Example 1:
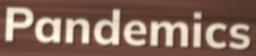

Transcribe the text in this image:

Pandemics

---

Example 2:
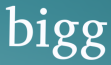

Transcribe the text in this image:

bigg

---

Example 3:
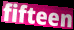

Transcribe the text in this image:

fifteen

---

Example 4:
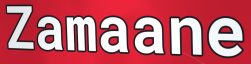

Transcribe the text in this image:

Zamaane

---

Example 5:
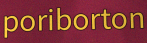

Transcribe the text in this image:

poriborton